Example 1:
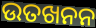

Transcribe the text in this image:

ଉତଖନନ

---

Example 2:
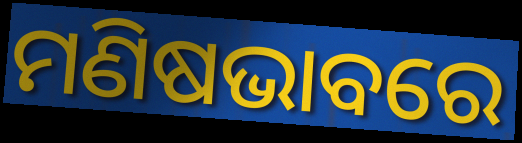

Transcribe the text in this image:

ମଣିଷଭାବରେ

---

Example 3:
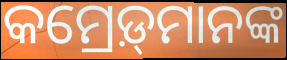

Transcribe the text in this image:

କମ୍ରେଡ଼୍‍ମାନଙ୍କ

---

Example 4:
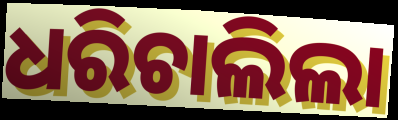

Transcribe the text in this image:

ଧରିଚାଲିଲା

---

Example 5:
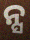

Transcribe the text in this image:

ନ୍ସ